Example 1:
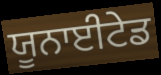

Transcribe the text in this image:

ਯੂਨਾਈਟੇਡ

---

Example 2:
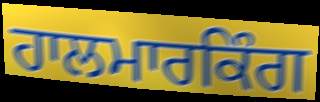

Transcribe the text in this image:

ਹਾਲਮਾਰਕਿੰਗ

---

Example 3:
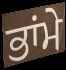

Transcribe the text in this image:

ਭਾਂਮੇ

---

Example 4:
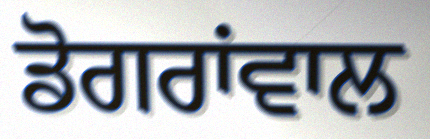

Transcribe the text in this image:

ਡੋਗਰਾਂਵਾਲ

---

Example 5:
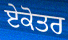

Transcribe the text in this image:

ਏਕੋਤਰ